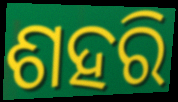
ଶହରି